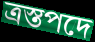
ত্রস্তপদে